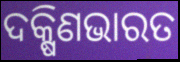
ଦକ୍ଷିଣଭାରତ